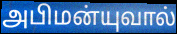
அபிமன்யுவால்